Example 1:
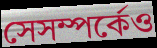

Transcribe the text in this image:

সেসম্পর্কেও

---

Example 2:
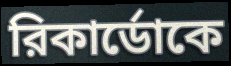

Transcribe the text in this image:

রিকার্ডোকে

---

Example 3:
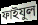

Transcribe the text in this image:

ফাইযুল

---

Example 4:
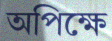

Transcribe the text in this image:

অপিক্ষে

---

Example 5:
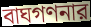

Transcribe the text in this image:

বাঘগণনার